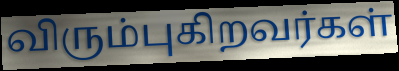
விரும்புகிறவர்கள்